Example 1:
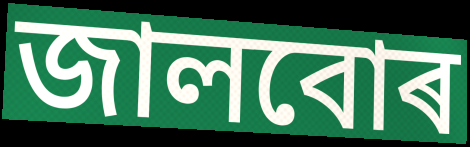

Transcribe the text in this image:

জালবোৰ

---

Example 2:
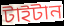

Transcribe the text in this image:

টাইটান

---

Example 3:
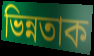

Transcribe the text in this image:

ভিন্নতাক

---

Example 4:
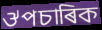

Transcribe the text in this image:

ঔপচাৰিক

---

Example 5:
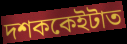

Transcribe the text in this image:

দশককেইটাত